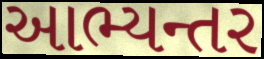
આભ્યન્તર